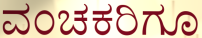
ವಂಚಕರಿಗೂ